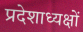
प्रदेशाध्यक्षों